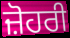
ਜ਼ੋਹਰੀ